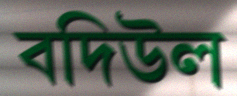
বদিউল